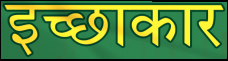
इच्छाकार